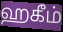
ஹகீம்